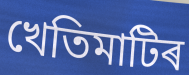
খেতিমাটিৰ